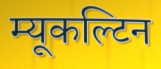
म्यूकल्टिन